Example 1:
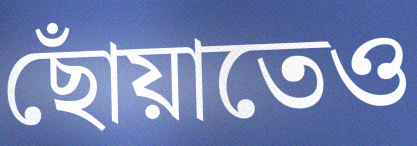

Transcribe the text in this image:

ছোঁয়াতেও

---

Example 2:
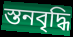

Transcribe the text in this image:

স্তনবৃদ্ধি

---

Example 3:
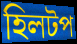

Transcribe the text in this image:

হিলটপ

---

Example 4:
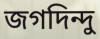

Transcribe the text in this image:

জগদিন্দু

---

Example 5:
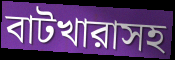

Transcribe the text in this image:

বাটখারাসহ